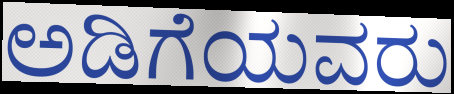
ಅಡಿಗೆಯವರು